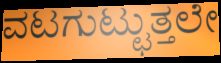
ವಟಗುಟ್ಟುತ್ತಲೇ